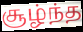
சூழ்ந்த